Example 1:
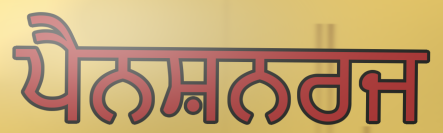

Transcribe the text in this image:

ਪੈਨਸ਼ਨਰਜ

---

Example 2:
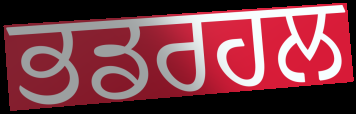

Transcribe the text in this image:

ਭਡਰਹਲ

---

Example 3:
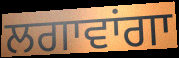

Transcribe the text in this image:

ਲਗਾਵਾਂਗਾ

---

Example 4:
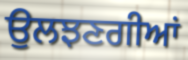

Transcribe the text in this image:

ਉਲਝਣਗੀਆਂ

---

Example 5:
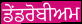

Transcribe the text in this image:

ਡੇਂਡਰੋਬੀਅਮ